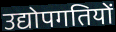
उद्योपगतियों